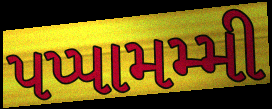
પપ્પામમ્મી